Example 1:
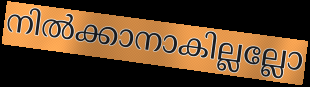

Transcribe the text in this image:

നിൽക്കാനാകില്ലല്ലോ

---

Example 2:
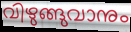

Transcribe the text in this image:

വിഴുങ്ങുവാനും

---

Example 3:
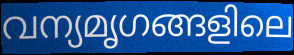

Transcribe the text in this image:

വന്യമൃഗങ്ങളിലെ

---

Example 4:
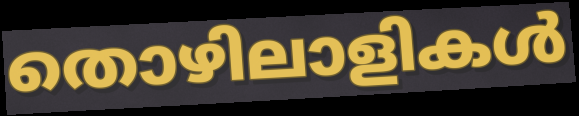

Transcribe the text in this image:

തൊഴിലാളികൾ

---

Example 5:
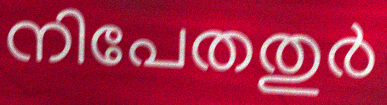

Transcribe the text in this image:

നിപേതതുർ